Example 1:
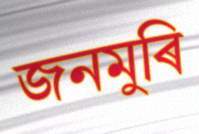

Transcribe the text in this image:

জনমুৰি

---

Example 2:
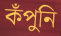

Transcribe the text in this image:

কঁপুনি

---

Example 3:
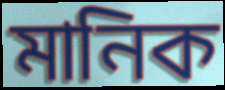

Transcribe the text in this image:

মানিক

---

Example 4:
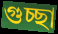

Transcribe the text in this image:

গুচ্ছা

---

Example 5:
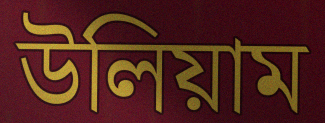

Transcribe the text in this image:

উলিয়াম